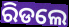
ରିଡଲେ